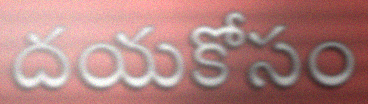
దయకోసం